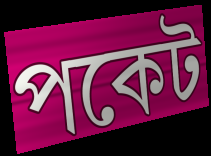
পকেট